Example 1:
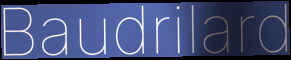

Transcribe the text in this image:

Baudrilard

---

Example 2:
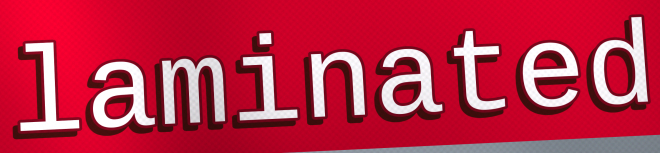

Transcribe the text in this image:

laminated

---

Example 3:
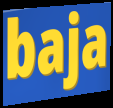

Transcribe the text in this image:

baja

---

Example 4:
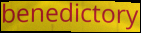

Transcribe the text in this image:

benedictory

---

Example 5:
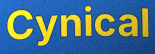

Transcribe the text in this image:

Cynical